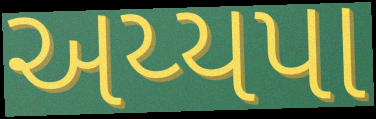
અય્યપા